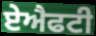
ਏਐਫਟੀ